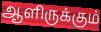
ஆளிருக்கும்